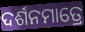
ଦର୍ଶନମାତ୍ରେ